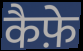
कैफ़े